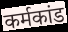
कर्मकांड